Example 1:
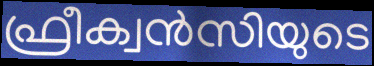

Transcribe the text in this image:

ഫ്രീക്വൻസിയുടെ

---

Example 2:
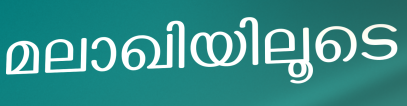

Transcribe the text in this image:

മലാഖിയിലൂടെ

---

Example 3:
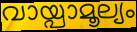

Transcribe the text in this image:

വായ്പാമൂല്യം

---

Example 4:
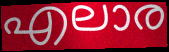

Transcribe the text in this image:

എലാര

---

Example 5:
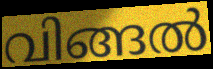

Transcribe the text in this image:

വിങ്ങൽ